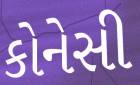
કોનેસી